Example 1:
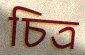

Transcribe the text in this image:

চিত্ৰ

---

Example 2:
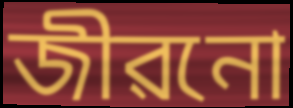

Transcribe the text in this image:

জীৱনো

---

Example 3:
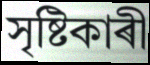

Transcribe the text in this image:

সৃষ্টিকাৰী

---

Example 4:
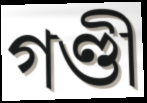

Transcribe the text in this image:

গণ্ডী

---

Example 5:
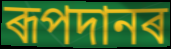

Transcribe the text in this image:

ৰূপদানৰ